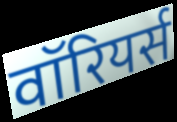
वॉरियर्स